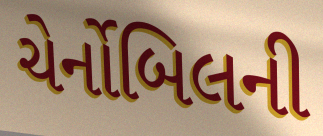
ચેર્નોબિલની